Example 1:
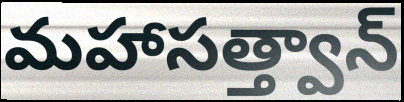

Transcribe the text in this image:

మహాసత్త్వాన్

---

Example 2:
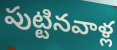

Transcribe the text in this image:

పుట్టినవాళ్ల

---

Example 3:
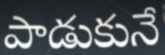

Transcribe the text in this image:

పాడుకునే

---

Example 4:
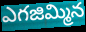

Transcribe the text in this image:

ఎగజిమ్మిన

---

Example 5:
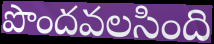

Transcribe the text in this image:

పొందవలసింది